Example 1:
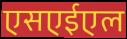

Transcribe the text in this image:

एसएईएल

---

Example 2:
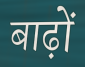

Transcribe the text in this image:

बाढ़ों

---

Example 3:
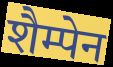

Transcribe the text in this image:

शैम्पेन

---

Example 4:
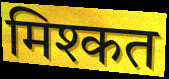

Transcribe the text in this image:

मिश्कत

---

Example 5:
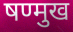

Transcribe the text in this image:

षण्मुख